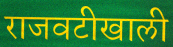
राजवटीखाली